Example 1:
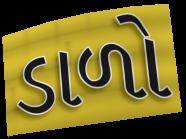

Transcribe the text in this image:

ડાળો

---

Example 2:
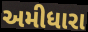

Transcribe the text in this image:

અમીધારા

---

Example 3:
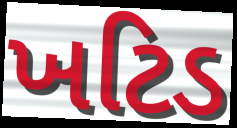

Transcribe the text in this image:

ખટિડ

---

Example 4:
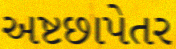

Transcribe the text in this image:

અષ્ટછાપેતર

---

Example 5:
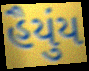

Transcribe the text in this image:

હૈયુંય